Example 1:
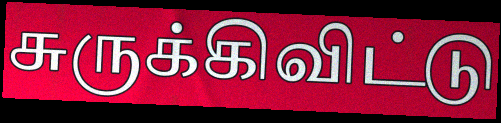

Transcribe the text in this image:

சுருக்கிவிட்டு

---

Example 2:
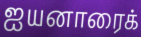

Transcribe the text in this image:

ஐயனாரைக்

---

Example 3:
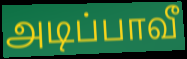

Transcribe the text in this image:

அடிப்பாவீ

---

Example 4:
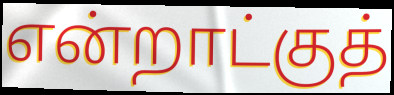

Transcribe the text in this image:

என்றாட்குத்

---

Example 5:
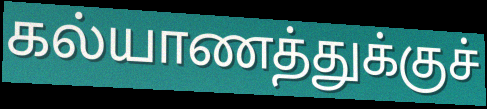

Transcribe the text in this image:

கல்யாணத்துக்குச்